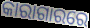
କାରାଗାରରେ